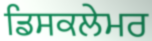
ਡਿਸਕਲੇਮਰ